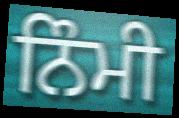
ਨਿੰਮੀ